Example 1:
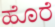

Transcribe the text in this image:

ಹೊರೆ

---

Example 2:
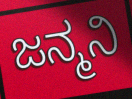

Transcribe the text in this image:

ಜನ್ಮನಿ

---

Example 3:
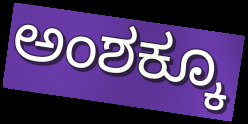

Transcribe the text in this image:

ಅಂಶಕ್ಕೂ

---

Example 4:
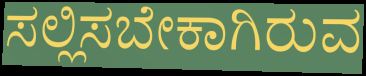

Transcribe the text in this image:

ಸಲ್ಲಿಸಬೇಕಾಗಿರುವ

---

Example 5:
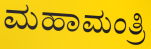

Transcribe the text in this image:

ಮಹಾಮಂತ್ರಿ